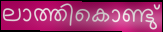
ലാത്തികൊണ്ടു്